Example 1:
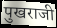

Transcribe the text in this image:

पुखराजी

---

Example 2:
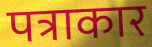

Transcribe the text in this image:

पत्राकार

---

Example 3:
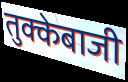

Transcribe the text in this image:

तुक्केबाजी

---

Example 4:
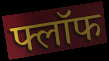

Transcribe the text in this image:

फ्लॉफ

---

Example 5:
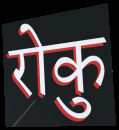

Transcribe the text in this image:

रोकु